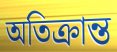
অতিক্ৰান্ত